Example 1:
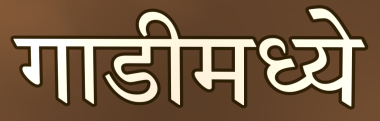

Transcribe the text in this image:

गाडीमध्ये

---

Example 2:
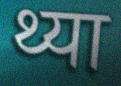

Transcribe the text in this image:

थ्या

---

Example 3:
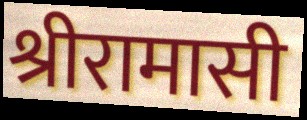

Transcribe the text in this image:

श्रीरामासी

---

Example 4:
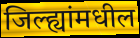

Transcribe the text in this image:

जिल्ह्यांमधील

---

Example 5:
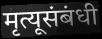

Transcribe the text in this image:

मृत्यूसंबंधी